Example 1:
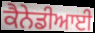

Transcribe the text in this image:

ਕੈਨੇਡੀਆਈ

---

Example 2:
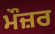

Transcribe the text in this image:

ਮੌਜ਼ਰ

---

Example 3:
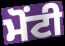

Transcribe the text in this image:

ਮੋਂਟੀ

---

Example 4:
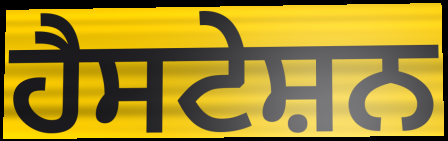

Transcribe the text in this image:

ਹੈਸਟੇਸ਼ਨ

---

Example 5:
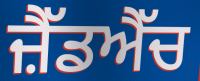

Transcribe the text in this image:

ਜ਼ੈੱਡਐੱਚ